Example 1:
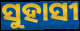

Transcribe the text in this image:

ସୁହାସୀ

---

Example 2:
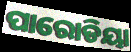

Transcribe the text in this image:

ପାରୋଡିୟା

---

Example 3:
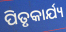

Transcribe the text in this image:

ପିତୃକାର୍ଯ୍ୟ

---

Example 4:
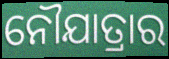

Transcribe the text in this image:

ନୌଯାତ୍ରାର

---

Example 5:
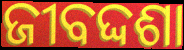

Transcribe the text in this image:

ଜୀବଦ୍ଦଶା